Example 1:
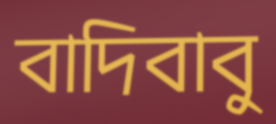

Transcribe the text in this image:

বাদিবাবু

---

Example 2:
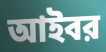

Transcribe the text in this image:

আইবর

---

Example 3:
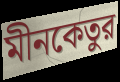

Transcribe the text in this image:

মীনকেতুর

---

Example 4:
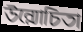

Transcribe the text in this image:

উন্মোচিতা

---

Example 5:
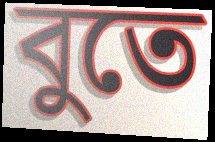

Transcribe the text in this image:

বুতে